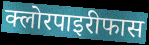
क्लोरपाइरीफास